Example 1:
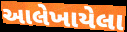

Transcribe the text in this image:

આલેખાયેલા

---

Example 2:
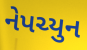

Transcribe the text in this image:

નેપચ્યુન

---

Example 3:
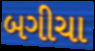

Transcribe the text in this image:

બગીચા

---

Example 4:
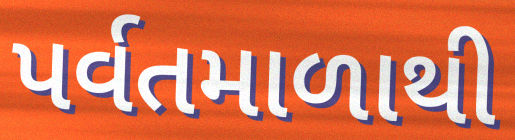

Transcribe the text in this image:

પર્વતમાળાથી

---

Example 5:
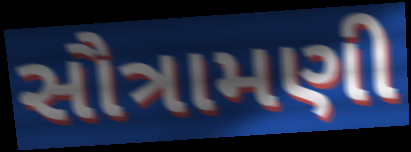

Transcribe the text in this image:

સૌત્રામણી